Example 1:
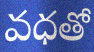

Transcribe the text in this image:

వధతో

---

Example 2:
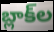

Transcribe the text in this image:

బ్లాక్‌ల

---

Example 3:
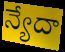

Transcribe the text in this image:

న్యేదా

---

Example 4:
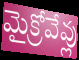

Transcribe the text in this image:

మైక్రోవేవ్లు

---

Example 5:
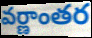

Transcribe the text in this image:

వర్ణాంతర